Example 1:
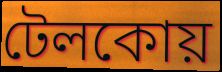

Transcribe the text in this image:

টেলকোয়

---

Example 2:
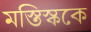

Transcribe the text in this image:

মস্তিস্ককে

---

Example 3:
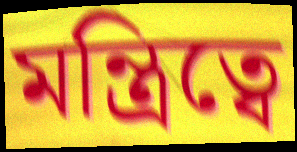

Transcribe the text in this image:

মন্ত্রিত্বে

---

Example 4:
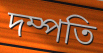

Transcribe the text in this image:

দম্পতি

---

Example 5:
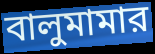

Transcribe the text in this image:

বালুমামার